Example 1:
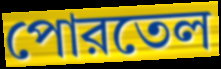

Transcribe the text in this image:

পোরতেল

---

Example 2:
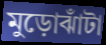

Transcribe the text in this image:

মুড়োঝাঁটা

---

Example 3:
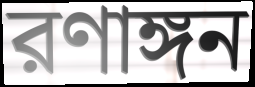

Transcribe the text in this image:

রণাঙ্গন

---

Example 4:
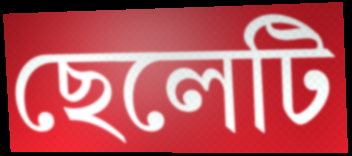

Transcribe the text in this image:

ছেলেটি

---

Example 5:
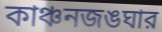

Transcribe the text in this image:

কাঞ্চনজঙঘার